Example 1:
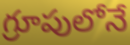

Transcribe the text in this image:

గ్రూపులోనే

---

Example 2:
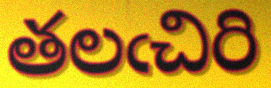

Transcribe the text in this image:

తలఁచిరి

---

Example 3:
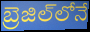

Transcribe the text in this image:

బ్రెజిల్‌లోనే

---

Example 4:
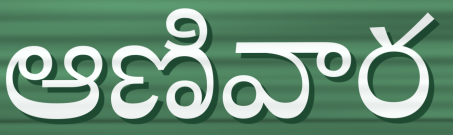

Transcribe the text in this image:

ఆణివార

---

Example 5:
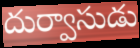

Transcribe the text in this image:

దుర్వాసుడు